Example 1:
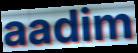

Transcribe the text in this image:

aadim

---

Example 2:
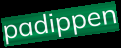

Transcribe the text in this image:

padippen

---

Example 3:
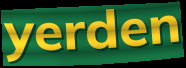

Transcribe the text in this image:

yerden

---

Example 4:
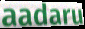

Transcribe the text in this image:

aadaru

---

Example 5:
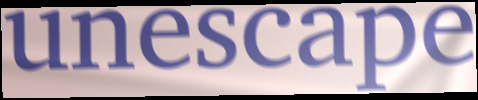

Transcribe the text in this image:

unescape